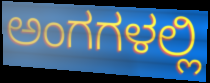
ಅಂಗಗಳಲ್ಲಿ